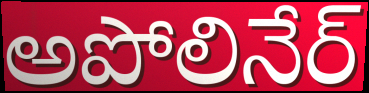
అపోలినేర్